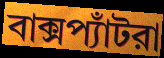
বাক্সপ্যাঁটরা